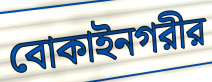
বোকাইনগরীর